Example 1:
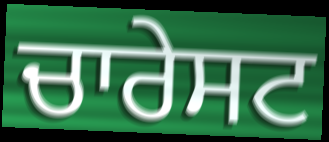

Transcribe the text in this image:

ਚਾਰੇਸਟ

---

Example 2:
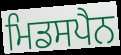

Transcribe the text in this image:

ਮਿਡਸਪੈਨ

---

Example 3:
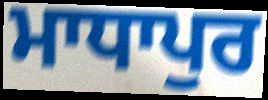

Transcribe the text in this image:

ਮਾਧਾਪੁਰ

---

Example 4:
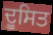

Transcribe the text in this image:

ਦੂਸਿਤ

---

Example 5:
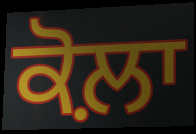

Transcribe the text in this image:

ਕੋਲ਼ਾ